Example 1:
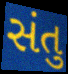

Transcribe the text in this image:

સંતુ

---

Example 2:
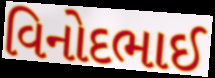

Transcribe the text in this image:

વિનોદભાઈ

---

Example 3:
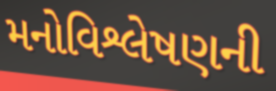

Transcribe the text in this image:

મનોવિશ્લેષણની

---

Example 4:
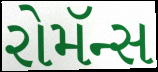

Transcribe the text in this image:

રોમૅન્સ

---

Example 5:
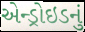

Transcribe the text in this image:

એન્ડ્રોઇડનું